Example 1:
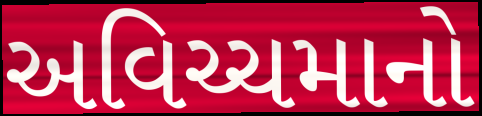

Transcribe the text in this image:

અવિચ્ચમાનો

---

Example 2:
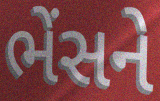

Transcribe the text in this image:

ભેંસને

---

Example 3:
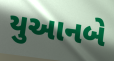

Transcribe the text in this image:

યુઆનબે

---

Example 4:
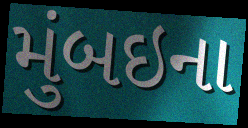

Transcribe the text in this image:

મુંબઇના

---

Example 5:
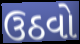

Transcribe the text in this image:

ઉઠવો